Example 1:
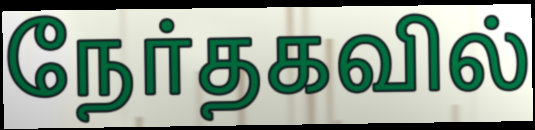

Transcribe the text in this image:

நேர்தகவில்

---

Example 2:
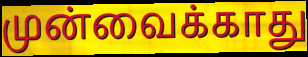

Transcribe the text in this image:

முன்வைக்காது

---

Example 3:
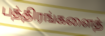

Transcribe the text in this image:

பத்திரங்களைத்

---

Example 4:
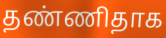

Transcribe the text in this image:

தண்ணிதாக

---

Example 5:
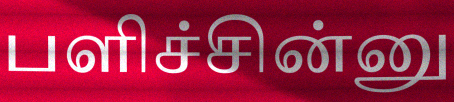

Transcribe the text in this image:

பளிச்சின்னு